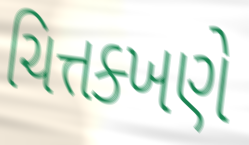
ચિત્તક્ખણે